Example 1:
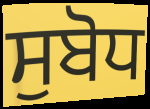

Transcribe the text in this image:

ਸੁਬੋਧ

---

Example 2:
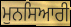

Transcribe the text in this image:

ਮੁਨਸਿਆਰੀ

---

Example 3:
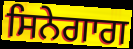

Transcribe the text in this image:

ਸਿਨੇਗਾਗ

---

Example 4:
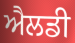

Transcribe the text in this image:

ਐਲਡੀ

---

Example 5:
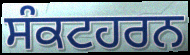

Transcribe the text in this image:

ਸੰਕਟਹਰਨ